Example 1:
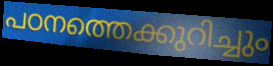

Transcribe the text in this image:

പഠനത്തെക്കുറിച്ചും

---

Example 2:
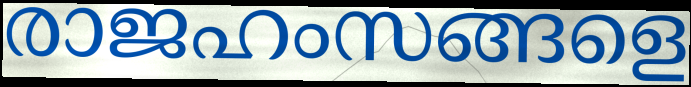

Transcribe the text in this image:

രാജഹംസങ്ങളെ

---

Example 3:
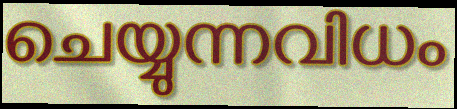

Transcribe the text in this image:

ചെയ്യുന്നവിധം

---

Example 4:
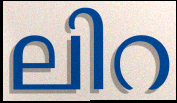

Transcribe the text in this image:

ലിറ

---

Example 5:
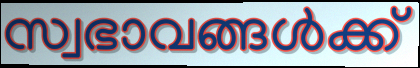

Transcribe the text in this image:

സ്വഭാവങ്ങൾക്ക്